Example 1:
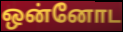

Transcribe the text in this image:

ஒன்னோட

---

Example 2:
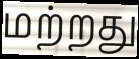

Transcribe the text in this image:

மற்றது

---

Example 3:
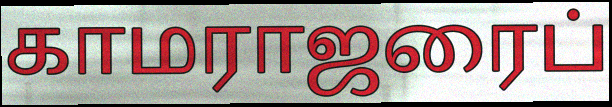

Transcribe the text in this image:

காமராஜரைப்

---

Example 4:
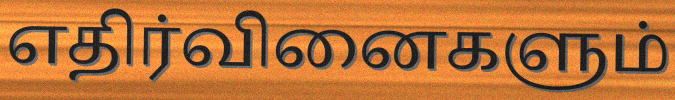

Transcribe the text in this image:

எதிர்வினைகளும்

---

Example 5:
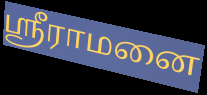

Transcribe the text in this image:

ஸ்ரீராமனை